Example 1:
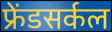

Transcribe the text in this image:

फ्रेंडसर्कल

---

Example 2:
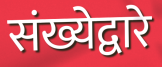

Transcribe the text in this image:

संख्येद्वारे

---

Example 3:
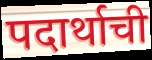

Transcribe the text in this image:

पदार्थाची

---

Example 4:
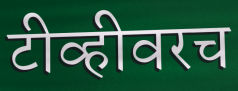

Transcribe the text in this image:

टीव्हीवरच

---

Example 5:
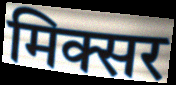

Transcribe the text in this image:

मिक्‍सर